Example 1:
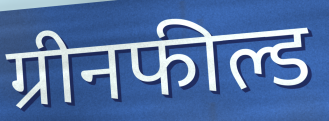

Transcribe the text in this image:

ग्रीनफील्‍ड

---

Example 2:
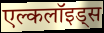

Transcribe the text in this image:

एल्कलॉइड्स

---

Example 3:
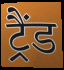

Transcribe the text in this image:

ट्रैंड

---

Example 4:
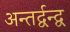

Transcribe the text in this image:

अन्तर्द्वन्द्व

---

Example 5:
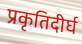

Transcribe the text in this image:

प्रकृतिदीर्घ